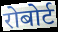
रोबोर्ट